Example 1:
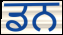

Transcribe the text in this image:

ਡਨ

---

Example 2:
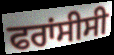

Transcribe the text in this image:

ਫਰਾਂਸੀਸੀ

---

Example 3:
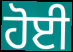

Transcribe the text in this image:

ਹੋਈ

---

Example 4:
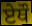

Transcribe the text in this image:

ਏਥੌ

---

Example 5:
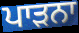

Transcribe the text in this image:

ਪਾੜਨਾ